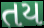
તય